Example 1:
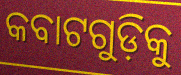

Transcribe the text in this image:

କବାଟଗୁଡ଼ିକୁ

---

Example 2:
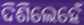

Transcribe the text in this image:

ଦିଶିଲେହେଁ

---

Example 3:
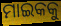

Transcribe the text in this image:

ମାଇକକୁ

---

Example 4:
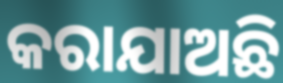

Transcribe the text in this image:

କରାଯାଅଛି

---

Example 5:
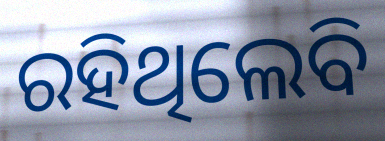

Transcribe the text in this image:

ରହିଥିଲେବି